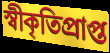
স্বীকৃতিপ্রাপ্ত